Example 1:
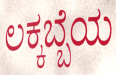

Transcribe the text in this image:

ಲಕ್ಕಬ್ಬೆಯ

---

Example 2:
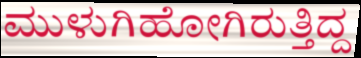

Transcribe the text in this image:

ಮುಳುಗಿಹೋಗಿರುತ್ತಿದ್ದ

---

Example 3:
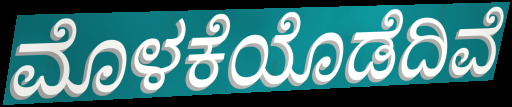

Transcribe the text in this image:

ಮೊಳಕೆಯೊಡೆದಿವೆ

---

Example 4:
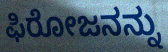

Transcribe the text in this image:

ಫಿರೋಜನನ್ನು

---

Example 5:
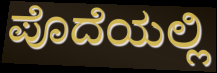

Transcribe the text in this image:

ಪೊದೆಯಲ್ಲಿ